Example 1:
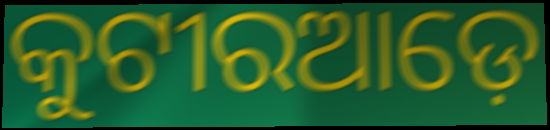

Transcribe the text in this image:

କୁଟୀରଆଡ଼େ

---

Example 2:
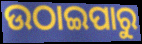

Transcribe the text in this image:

ଉଠାଇପାରୁ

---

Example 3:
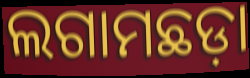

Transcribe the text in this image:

ଲଗାମଛଡ଼ା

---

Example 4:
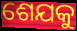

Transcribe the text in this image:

ଶେଯକୁ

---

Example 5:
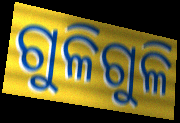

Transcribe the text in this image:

ଗୁଳିଗୁଳି